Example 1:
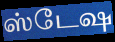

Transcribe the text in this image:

ஸ்டேஷ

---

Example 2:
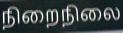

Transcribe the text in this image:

நிறைநிலை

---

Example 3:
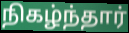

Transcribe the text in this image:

நிகழ்ந்தார்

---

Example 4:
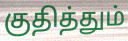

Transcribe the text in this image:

குதித்தும்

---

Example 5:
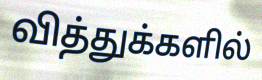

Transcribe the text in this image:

வித்துக்களில்